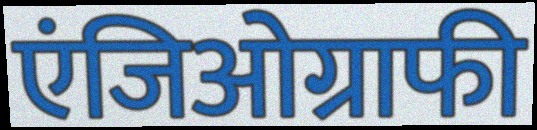
एंजिओग्राफी